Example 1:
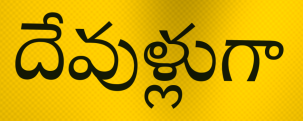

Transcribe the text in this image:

దేవుళ్లుగా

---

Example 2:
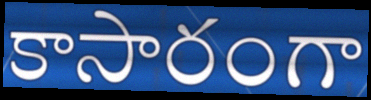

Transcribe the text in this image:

కాసారంగా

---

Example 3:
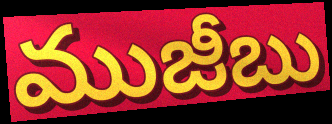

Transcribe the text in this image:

ముజీబు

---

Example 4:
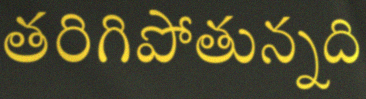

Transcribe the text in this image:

తరిగిపోతున్నది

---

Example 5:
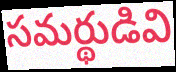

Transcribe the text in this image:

సమర్థుడివి